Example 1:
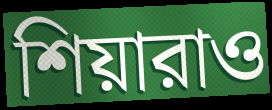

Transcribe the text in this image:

শিয়ারাও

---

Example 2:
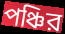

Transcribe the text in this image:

পঞ্চির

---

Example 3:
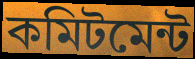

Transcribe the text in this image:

কমিটমেন্ট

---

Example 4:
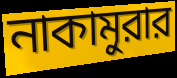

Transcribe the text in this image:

নাকামুরার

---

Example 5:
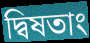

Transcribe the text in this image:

দ্বিষতাং